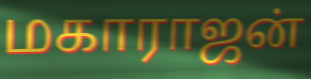
மகாராஜன்